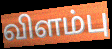
விளம்பு